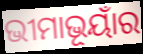
ଭୀମାଭୂୟାଁର